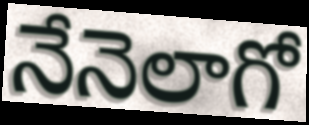
నేనెలాగో